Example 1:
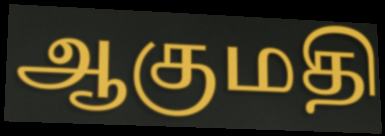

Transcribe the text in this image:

ஆகுமதி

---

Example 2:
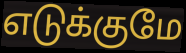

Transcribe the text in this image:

எடுக்குமே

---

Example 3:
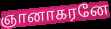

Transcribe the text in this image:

ஞானாகரனே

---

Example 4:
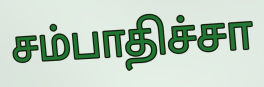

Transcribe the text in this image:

சம்பாதிச்சா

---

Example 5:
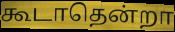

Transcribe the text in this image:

கூடாதென்றா